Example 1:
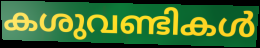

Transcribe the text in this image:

കശുവണ്ടികൾ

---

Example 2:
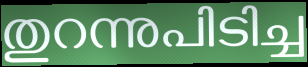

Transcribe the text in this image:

തുറന്നുപിടിച്ച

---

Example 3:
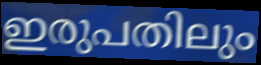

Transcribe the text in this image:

ഇരുപതിലും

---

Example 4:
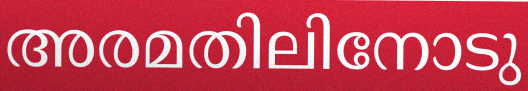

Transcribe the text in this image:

അരമതിലിനോടു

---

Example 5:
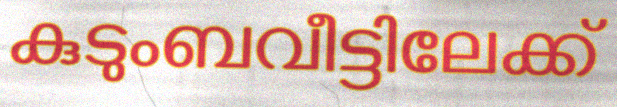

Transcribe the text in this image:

കുടുംബവീട്ടിലേക്ക്